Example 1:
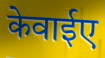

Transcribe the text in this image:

केवाईए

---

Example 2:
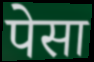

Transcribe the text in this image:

पेसा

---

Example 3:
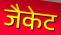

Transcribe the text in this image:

जैकेट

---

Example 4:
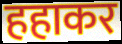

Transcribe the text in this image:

हहाकर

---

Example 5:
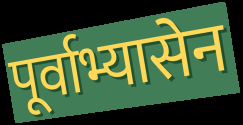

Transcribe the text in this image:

पूर्वाभ्यासेन